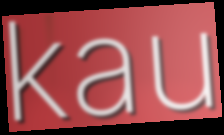
kau